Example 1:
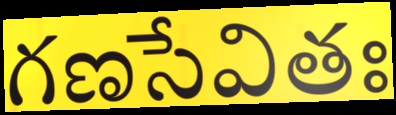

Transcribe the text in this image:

గణసేవితః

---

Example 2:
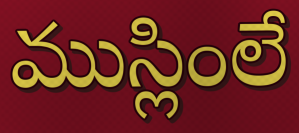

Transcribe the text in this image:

ముస్లింలే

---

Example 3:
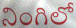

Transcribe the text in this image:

నింగిలో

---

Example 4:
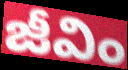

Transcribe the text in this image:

జీవిం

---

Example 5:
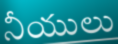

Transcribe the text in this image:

నీయులు